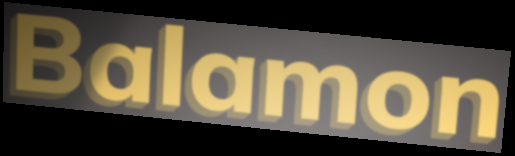
Balamon